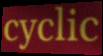
cyclic